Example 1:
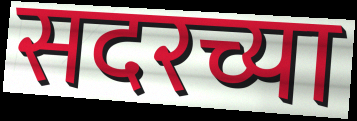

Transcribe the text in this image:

सदरच्या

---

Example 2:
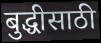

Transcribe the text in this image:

बुद्धीसाठी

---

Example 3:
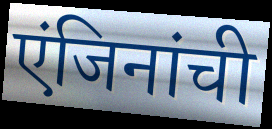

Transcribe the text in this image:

एंजिनांची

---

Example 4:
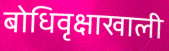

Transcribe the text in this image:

बोधिवृक्षाखाली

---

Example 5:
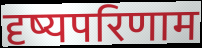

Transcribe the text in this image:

दृष्यपरिणाम